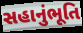
સહાનુંભૂતિ